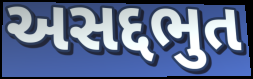
અસદ્દભુત